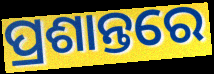
ପ୍ରଶାନ୍ତରେ